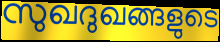
സുഖദുഖങ്ങളുടെ